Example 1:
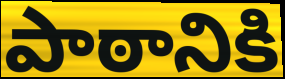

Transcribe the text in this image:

పాఠానికి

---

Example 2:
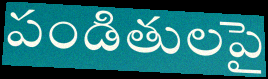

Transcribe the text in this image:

పండితులపై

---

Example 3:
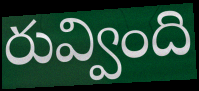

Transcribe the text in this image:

రువ్వింది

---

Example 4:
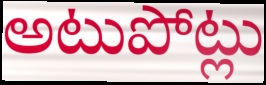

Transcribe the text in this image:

అటుపోట్లు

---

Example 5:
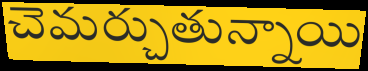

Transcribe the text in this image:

చెమర్చుతున్నాయి